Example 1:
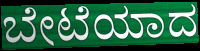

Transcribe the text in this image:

ಬೇಟೆಯಾದ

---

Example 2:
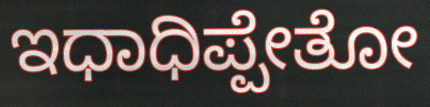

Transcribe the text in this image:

ಇಧಾಧಿಪ್ಪೇತೋ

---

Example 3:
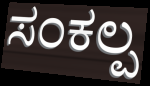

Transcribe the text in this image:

ಸಂಕಲ್ಪ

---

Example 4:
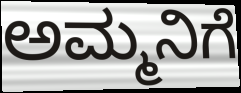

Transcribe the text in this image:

ಅಮ್ಮನಿಗೆ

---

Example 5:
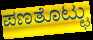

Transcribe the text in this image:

ಪಣತೊಟ್ಟು